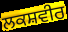
ਲਕਸ਼ਵੀਰ